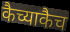
कैच्याकैच